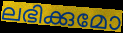
ലഭിക്കുമോ